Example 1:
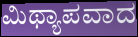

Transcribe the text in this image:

ಮಿಥ್ಯಾಪವಾದ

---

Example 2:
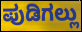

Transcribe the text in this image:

ಪುಡಿಗಲ್ಲು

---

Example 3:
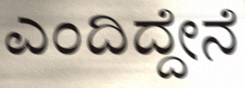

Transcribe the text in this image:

ಎಂದಿದ್ದೇನೆ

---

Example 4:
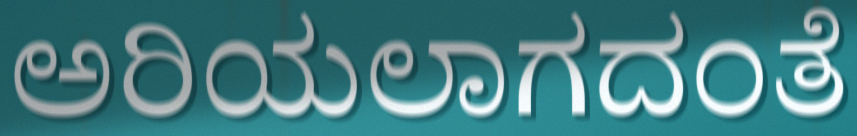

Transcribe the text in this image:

ಅರಿಯಲಾಗದಂತೆ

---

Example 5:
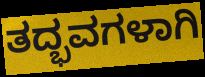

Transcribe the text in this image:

ತದ್ಭವಗಳಾಗಿ